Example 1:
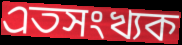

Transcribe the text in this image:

এতসংখ্যক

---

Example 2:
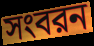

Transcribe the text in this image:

সংবরন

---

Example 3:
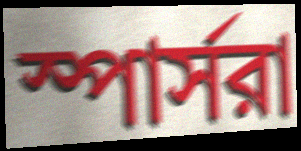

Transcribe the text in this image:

স্পার্সরা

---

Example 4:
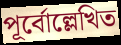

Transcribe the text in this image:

পূর্বোল্লেখিত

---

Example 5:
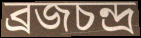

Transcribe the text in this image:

ব্রজচন্দ্র